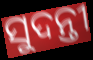
ସୁଦନ୍ତୀ